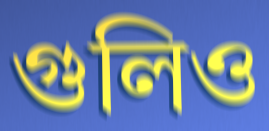
গুলিও